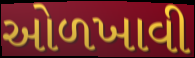
ઓળખાવી